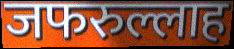
जफरुल्लाह